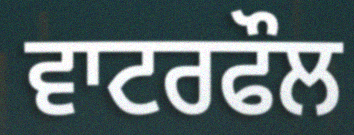
ਵਾਟਰਫੌਲ